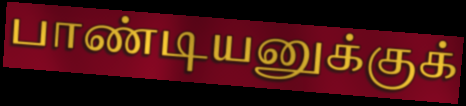
பாண்டியனுக்குக்